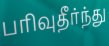
பரிவுதீர்ந்து